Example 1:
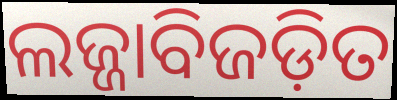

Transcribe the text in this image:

ଲଜ୍ଜାବିଜଡ଼ିତ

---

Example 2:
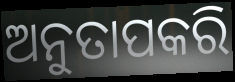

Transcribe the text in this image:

ଅନୁତାପକରି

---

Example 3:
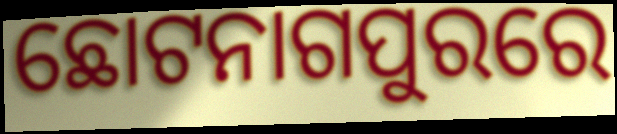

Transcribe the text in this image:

ଛୋଟନାଗପୁରରେ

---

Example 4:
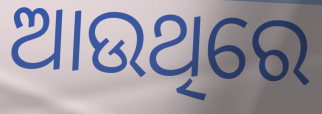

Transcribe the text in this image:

ଆଉଥିରେ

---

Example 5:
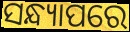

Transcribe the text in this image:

ସନ୍ଧ୍ୟାପରେ